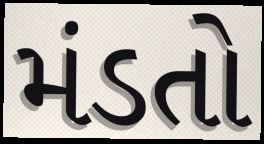
મંડતો